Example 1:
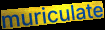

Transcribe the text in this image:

muriculate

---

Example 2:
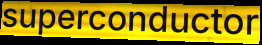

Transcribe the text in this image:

superconductor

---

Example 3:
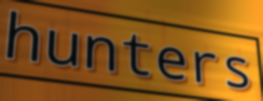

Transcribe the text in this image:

hunters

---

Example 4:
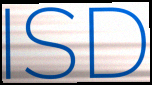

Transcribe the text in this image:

ISD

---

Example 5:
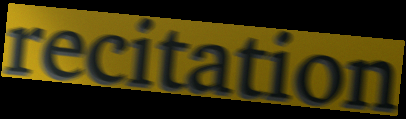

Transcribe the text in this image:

recitation